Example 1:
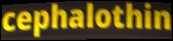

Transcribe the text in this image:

cephalothin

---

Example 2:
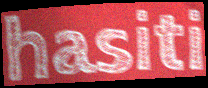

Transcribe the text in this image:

hasiti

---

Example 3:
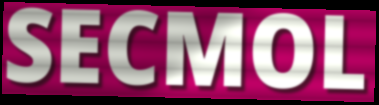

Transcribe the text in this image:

SECMOL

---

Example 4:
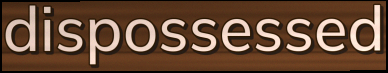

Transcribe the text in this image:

dispossessed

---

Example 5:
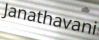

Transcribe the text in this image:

Janathavani